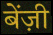
बेंज़ी